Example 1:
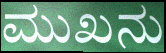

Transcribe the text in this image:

ಮುಖನು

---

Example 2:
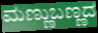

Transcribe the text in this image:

ಮಣ್ಣುಬಣ್ಣದ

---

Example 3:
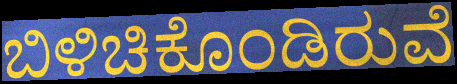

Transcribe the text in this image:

ಬಿಳಿಚಿಕೊಂಡಿರುವೆ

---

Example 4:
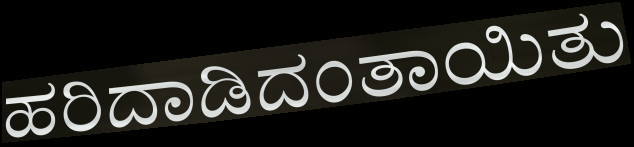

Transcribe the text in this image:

ಹರಿದಾಡಿದಂತಾಯಿತು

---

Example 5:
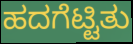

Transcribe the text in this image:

ಹದಗೆಟ್ಟಿತು